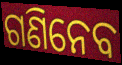
ଗଣିନେବ